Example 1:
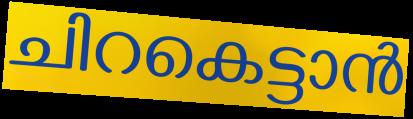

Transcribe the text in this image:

ചിറകെട്ടാൻ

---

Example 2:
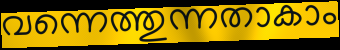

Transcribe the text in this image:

വന്നെത്തുന്നതാകാം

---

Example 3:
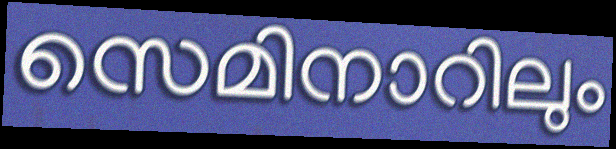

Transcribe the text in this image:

സെമിനാറിലും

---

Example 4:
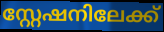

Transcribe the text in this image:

സ്റ്റേഷനിലേക്ക്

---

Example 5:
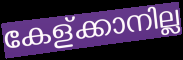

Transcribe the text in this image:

കേള്ക്കാനില്ല